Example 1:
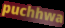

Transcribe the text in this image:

puchhwa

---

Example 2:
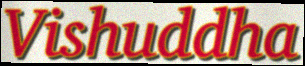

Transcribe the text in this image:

Vishuddha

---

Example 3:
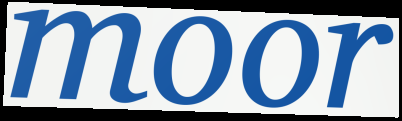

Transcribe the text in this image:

moor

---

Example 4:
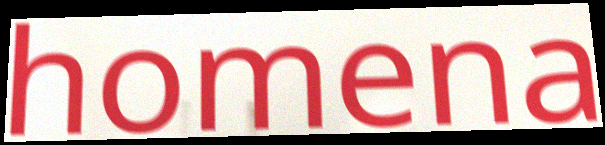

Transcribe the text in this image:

homena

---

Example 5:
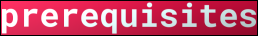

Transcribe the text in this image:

prerequisites